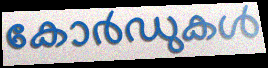
കോർഡുകൾ